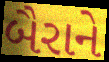
બૈરાને